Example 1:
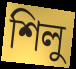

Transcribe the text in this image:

শিলু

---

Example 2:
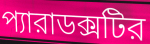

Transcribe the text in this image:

প্যারাডক্সটির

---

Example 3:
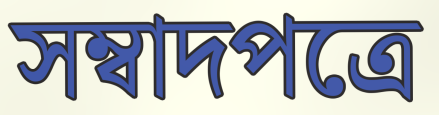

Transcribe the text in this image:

সম্বাদপত্রে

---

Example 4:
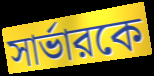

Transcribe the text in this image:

সার্ভারকে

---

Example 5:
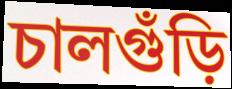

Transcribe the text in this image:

চালগুঁড়ি